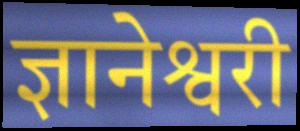
ज्ञानेश्वरी